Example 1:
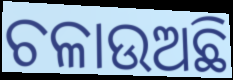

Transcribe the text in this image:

ଚଳାଉଅଛି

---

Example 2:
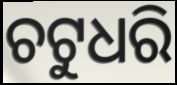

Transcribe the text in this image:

ଚଟୁଧରି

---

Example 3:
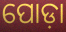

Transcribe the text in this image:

ପୋଡ଼ା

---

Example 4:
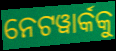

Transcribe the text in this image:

ନେଟୱାର୍କକୁ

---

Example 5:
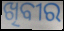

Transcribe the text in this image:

ଖିବୀର